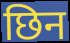
छिन